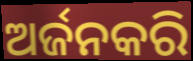
ଅର୍ଜନକରି